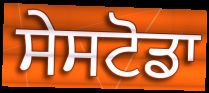
ਸੇਸਟੋਡਾ